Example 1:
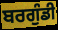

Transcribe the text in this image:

ਬਰਗੁੰਡੀ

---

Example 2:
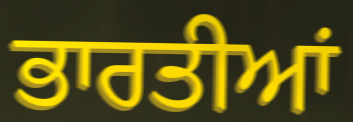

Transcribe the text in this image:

ਭਾਰਤੀਆਂ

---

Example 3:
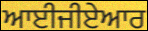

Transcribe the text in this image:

ਆਈਜੀਏਆਰ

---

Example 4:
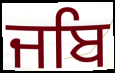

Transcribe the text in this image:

ਜਬਿ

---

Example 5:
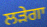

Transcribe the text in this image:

ਲੜੇਗਾ